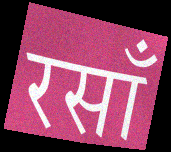
रसाँ